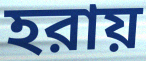
হরায়